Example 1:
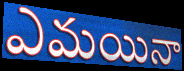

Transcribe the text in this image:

ఎమయినా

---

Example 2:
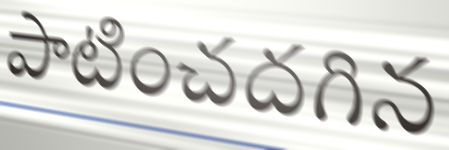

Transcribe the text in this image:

పాటించదగిన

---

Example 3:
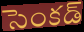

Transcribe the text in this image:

సెంకడ్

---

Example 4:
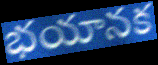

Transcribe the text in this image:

భయానక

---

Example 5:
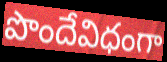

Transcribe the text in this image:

పొందేవిధంగా